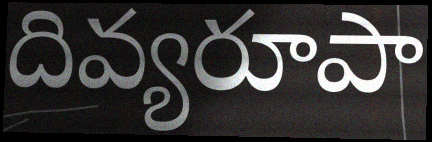
దివ్యరూపా